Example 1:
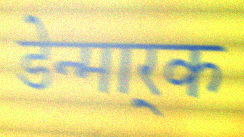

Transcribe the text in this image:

डेन्मार्क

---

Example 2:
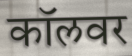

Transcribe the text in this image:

कॉलवर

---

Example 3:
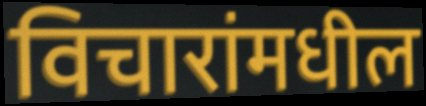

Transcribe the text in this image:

विचारांमधील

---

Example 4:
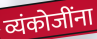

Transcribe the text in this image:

व्यंकोजींना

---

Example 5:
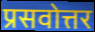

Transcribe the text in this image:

प्रसवोत्तर